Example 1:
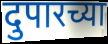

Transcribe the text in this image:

दुपारच्या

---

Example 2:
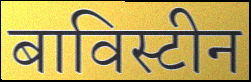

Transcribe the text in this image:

बाविस्टीन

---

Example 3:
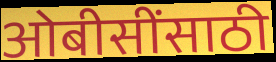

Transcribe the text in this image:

ओबीसींसाठी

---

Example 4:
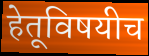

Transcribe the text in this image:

हेतूविषयीच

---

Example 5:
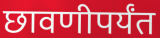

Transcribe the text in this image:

छावणीपर्यंत